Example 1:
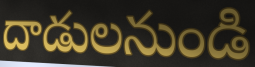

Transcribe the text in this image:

దాడులనుండి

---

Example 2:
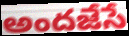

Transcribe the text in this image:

అందజేసే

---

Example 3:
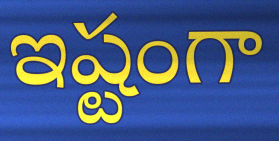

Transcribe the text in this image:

ఇష్టంగా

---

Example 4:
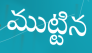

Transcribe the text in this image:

ముట్టిన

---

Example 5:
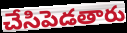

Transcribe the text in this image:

చేసిపెడతారు